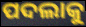
ପଦଲାକୁ